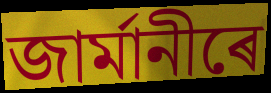
জাৰ্মানীৰে